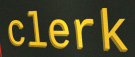
clerk